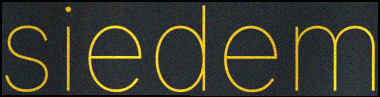
siedem